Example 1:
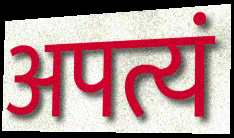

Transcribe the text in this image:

अपत्यं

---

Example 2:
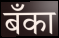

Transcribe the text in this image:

बँका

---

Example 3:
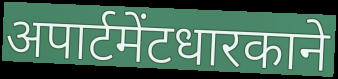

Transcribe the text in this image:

अपार्टमेंटधारकाने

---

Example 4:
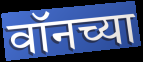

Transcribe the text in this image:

वॉनच्या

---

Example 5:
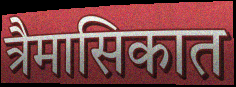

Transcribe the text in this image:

त्रैमासिकात